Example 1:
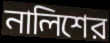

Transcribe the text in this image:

নালিশের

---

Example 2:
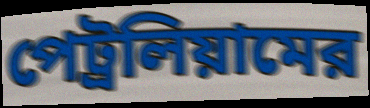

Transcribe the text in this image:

পেট্রলিয়ামের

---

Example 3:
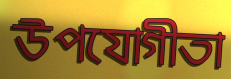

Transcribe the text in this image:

উপযোগীতা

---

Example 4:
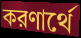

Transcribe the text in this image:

করণার্থে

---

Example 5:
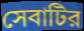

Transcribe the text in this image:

সেবাটির